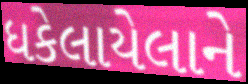
ધકેલાયેલાને